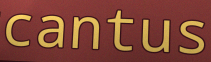
cantus